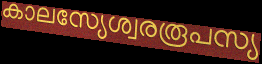
കാലസ്യേശ്വരരൂപസ്യ